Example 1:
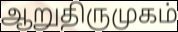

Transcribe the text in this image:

ஆறுதிருமுகம்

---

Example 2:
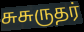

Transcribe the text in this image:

சுசுருதர்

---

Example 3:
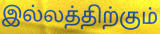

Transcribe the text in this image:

இல்லத்திற்கும்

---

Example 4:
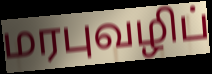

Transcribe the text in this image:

மரபுவழிப்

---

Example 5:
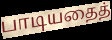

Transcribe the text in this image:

பாடியதைத்